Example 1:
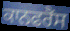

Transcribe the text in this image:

ਕਾਨਫਰੈਂਸ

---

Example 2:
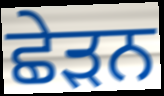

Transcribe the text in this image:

ਛੇੜਨ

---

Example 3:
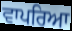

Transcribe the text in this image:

ਵਾਪਰਿਆ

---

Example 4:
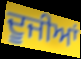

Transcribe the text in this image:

ਦੂਜੀਆਂ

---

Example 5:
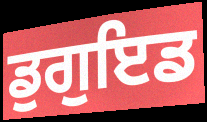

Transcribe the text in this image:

ਡੁਗੁਇਡ